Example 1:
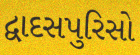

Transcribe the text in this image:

દ્વાદસપુરિસો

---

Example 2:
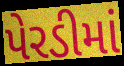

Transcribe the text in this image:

પેરડીમાં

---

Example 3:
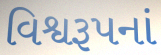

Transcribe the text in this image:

વિશ્વરૂપનાં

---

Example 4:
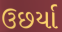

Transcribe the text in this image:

ઉછર્યા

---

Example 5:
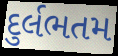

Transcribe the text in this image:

દુર્લભતમ